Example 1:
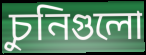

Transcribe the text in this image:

চুনিগুলো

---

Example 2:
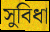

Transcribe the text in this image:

সুবিধা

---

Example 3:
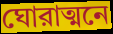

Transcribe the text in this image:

ঘোরাত্মনে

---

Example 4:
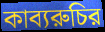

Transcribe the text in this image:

কাব্যরুচির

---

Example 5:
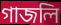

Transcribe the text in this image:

গাজলি